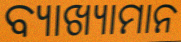
ବ୍ୟାଖ୍ୟାମାନ